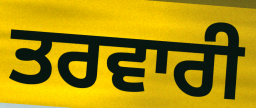
ਤਰਵਾਰੀ